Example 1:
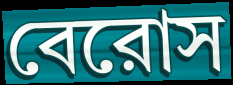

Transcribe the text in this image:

বেরোস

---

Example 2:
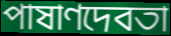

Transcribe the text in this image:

পাষাণদেবতা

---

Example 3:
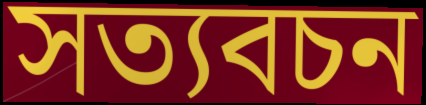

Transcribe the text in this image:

সত্যবচন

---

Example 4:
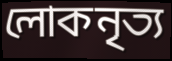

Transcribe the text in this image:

লোকনৃত্য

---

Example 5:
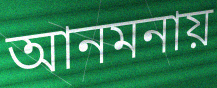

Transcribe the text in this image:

আনমনায়